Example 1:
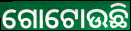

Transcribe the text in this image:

ଗୋଟୋଉଛି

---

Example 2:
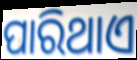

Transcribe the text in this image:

ପାରିଥାଏ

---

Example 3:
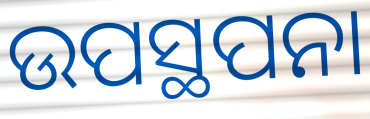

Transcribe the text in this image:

ଉପସ୍ଥପନା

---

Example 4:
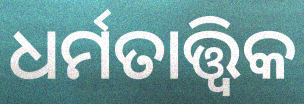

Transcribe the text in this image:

ଧର୍ମତାତ୍ତ୍ଵିକ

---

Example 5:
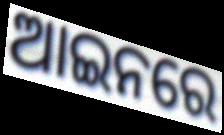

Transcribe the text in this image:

ଆଇନରେ